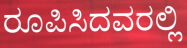
ರೂಪಿಸಿದವರಲ್ಲಿ